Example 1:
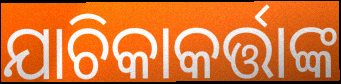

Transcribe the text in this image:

ଯାଚିକାକର୍ତ୍ତାଙ୍କ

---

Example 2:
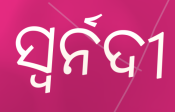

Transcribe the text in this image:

ସ୍ୱର୍ନଦୀ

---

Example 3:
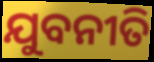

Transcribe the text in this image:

ଯୁବନୀତି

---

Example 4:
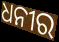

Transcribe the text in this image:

ଧନୀର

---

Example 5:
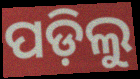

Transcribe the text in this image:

ପଡ଼ିଲୁ